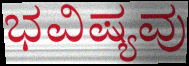
ಭವಿಷ್ಯವು